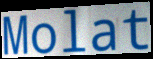
Molat